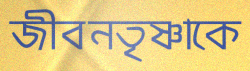
জীবনতৃষ্ণাকে